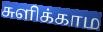
சுளிக்காம